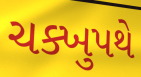
ચક્ખુપથે